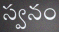
స్వనం